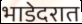
भाडेदरात